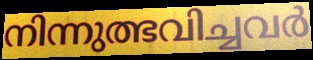
നിന്നുത്ഭവിച്ചവർ